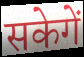
सकेगें